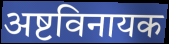
अष्टविनायक